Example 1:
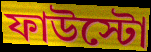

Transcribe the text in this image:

ফাউস্টো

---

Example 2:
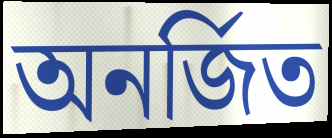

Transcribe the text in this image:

অনর্জিত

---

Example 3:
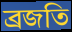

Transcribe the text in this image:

ব্রজতি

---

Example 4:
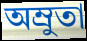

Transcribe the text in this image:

অম্রুতা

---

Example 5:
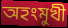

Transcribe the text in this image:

অহংমুখী